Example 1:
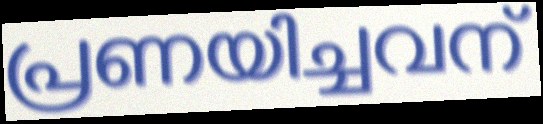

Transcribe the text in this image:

പ്രണയിച്ചവന്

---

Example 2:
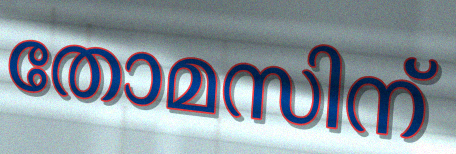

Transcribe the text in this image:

തോമസിന്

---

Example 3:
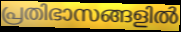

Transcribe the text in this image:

പ്രതിഭാസങ്ങളിൽ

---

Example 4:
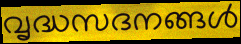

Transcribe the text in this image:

വൃദ്ധസദനങ്ങൾ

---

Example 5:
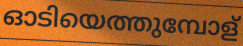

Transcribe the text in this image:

ഓടിയെത്തുമ്പോള്